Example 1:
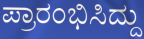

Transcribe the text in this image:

ಪ್ರಾರಂಭಿಸಿದ್ದು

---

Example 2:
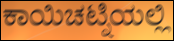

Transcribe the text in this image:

ಕಾಯಿಚಟ್ನಿಯಲ್ಲಿ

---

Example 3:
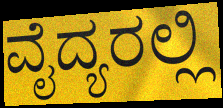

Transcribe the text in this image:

ವೈದ್ಯರಲ್ಲಿ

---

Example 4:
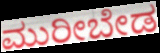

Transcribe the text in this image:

ಮುರೀಬೇಡ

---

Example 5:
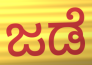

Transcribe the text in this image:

ಜಡೆ